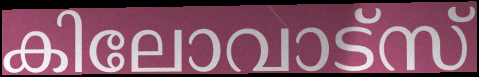
കിലോവാട്സ്